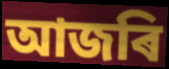
আজৰি